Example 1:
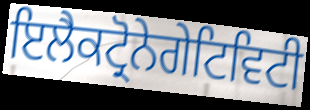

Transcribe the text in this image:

ਇਲੈਕਟ੍ਰੋਨੇਗੇਟਿਵਿਟੀ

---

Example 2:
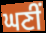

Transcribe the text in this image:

ਘਣੀਂ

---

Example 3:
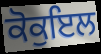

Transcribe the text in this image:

ਕੋਕੁਇਲ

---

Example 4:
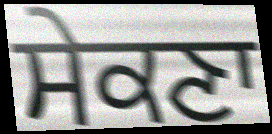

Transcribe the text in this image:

ਸੇਕਣਾ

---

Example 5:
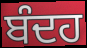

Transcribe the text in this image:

ਬੰਦਹ